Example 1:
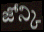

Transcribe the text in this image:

జోన్కి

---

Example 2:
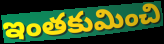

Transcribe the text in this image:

ఇంతకుమించి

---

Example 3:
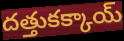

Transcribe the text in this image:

దత్తుకక్కాయ్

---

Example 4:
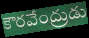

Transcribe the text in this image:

కౌరవేంద్రుడు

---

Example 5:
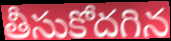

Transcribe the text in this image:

తీసుకోదగిన